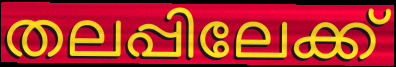
തലപ്പിലേക്ക്